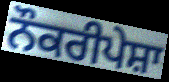
ਨੌਕਰੀਪੇਸ਼ਾ